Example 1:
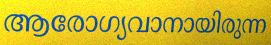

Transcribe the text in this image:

ആരോഗ്യവാനായിരുന്ന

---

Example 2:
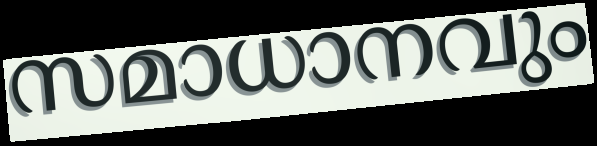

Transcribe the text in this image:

സമാധാനവും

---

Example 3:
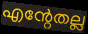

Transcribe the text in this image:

എന്റേതല്ല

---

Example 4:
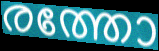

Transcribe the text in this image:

രത്തോ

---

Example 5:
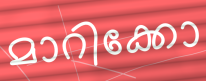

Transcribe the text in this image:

മാറിക്കോ